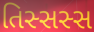
તિસ્સસ્સ